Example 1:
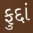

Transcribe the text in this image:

ફુદ્દાં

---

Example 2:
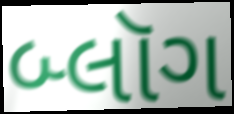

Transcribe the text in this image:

બ્લૉગ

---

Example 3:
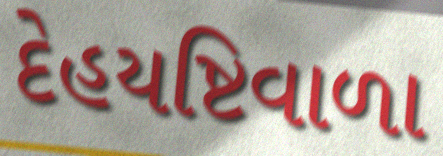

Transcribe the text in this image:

દેહયષ્ટિવાળા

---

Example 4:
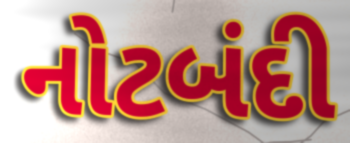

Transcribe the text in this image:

નોટબંદી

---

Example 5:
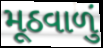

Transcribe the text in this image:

મૂઠવાળું